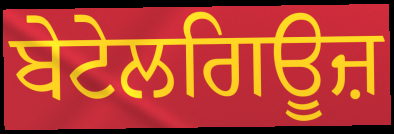
ਬੇਟੇਲਗਿਊਜ਼